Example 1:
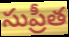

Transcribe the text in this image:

సుప్రీత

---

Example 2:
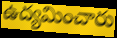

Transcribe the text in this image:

ఉద్యమించారు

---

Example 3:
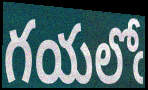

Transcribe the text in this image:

గయలోఁ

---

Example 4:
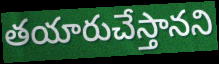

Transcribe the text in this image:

తయారుచేస్తానని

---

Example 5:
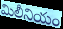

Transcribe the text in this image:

మిలీనియం